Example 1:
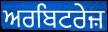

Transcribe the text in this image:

ਅਰਬਿਟਰੇਜ਼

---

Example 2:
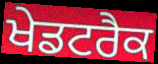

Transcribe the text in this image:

ਖੇਡਟਰੈਕ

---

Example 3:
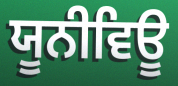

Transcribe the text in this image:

ਯੂਨੀਵਿਊ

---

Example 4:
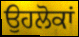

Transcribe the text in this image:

ਉਹਲੋਕਾਂ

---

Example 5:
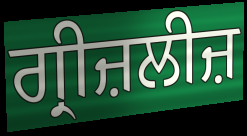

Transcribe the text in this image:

ਗ੍ਰੀਜ਼ਲੀਜ਼